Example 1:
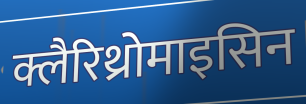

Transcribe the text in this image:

क्लैरिथ्रोमाइसिन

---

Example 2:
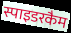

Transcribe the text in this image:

स्पाइडरकैम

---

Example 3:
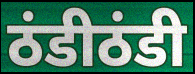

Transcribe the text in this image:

ठंडीठंडी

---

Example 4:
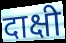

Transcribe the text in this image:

दाक्षी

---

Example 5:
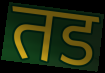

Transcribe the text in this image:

तड